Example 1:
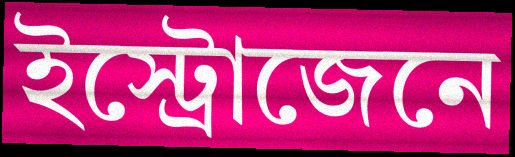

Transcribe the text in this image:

ইস্ট্রোজেনে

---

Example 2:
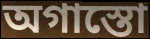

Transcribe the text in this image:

অগাস্তো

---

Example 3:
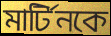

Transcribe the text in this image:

মার্টিনকে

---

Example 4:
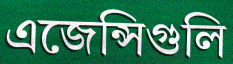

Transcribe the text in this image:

এজেন্সিগুলি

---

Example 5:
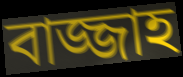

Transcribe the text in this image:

বাজ্জাহ